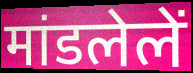
मांडलेलें